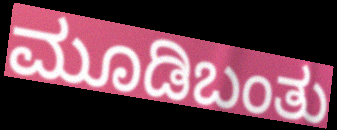
ಮೂಡಿಬಂತು